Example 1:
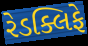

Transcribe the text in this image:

રેડક્લિફે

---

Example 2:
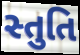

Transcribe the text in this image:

સ્તુતિ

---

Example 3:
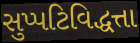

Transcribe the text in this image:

સુપ્પટિવિદ્ધત્તા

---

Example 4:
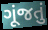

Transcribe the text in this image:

ગૂંજતું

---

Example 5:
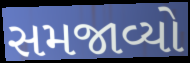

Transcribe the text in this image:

સમજાવ્યો